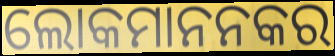
ଲୋକମାନନକର